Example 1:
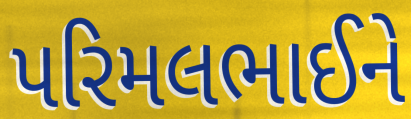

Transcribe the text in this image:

પરિમલભાઈને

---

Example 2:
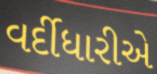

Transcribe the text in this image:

વર્દીધારીએ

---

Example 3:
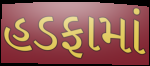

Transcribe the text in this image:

હડફામાં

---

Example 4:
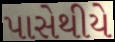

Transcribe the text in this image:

પાસેથીયે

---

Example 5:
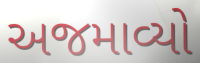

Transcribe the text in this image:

અજમાવ્યો